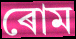
ৰোম